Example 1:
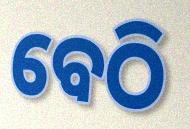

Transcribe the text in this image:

ବେଠି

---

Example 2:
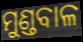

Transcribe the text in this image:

ମୁଣ୍ଡବାଳ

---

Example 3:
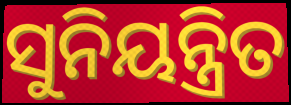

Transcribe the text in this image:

ସୁନିୟନ୍ତ୍ରିତ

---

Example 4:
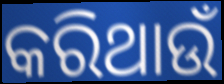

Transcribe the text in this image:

କରିଥାଉଁ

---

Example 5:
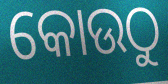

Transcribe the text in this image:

କୋଉଠୁ